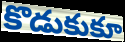
కొడుకుకూ